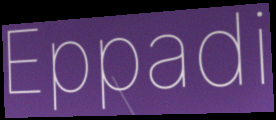
Eppadi